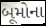
બૂમોના